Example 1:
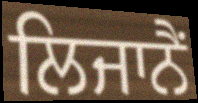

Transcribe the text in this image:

ਲਿਜਾਨੈਂ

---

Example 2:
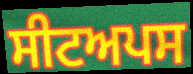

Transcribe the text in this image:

ਸੀਟਅਪਸ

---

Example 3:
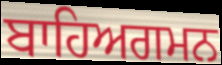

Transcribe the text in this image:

ਬਾਹਿਅਗਮਨ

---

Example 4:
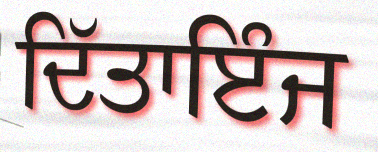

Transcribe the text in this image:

ਦਿੱਤਾਇੰਜ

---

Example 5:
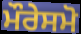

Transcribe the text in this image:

ਮੌਰੇਸਮੋ